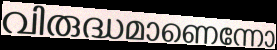
വിരുദ്ധമാണെന്നോ